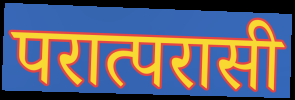
परात्परासी